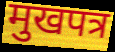
मुखपत्र